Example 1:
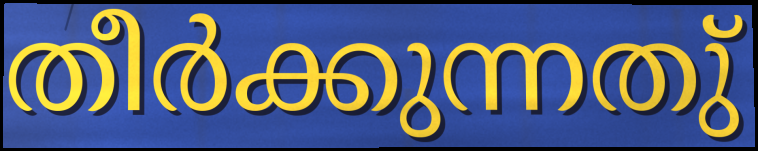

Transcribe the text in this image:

തീർക്കുന്നതു്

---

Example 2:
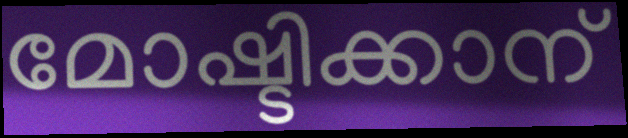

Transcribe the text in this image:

മോഷ്ടിക്കാന്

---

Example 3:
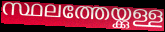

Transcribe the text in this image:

സ്ഥലത്തേയ്ക്കുള്ള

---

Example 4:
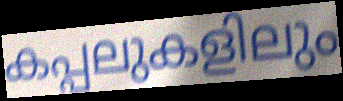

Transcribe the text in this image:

കപ്പലുകളിലും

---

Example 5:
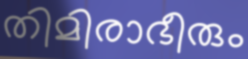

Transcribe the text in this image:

തിമിരാഭീരും